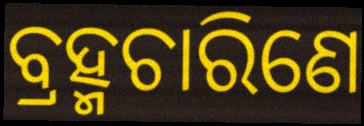
ବ୍ରହ୍ମଚାରିଣେ